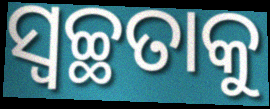
ସ୍ବଚ୍ଛତାକୁ